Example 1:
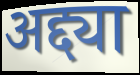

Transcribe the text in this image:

अद्द्या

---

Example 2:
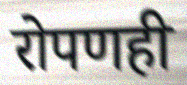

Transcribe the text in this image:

रोपणही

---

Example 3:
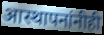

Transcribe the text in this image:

आस्थापनांनीही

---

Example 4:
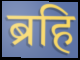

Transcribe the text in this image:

ब्रहि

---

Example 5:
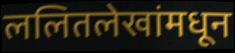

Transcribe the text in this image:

ललितलेखांमधून